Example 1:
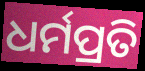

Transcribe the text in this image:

ଧର୍ମପ୍ରତି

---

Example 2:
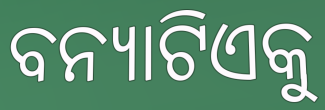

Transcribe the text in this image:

ବନ୍ୟାଟିଏକୁ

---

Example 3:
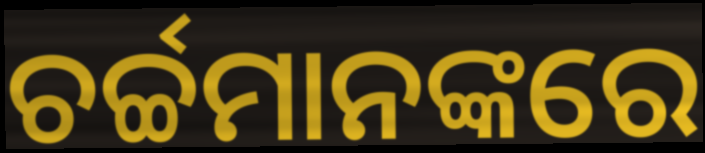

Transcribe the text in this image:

ଚର୍ଚ୍ଚମାନଙ୍କରେ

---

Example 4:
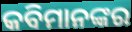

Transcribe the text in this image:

କବିମାନଙ୍କର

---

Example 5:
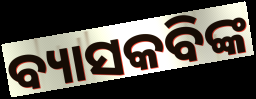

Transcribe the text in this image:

ବ୍ୟାସକବିଙ୍କ